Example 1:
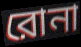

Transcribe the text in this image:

রোনা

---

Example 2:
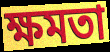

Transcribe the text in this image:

ক্ষমতা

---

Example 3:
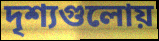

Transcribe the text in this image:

দৃশ্যগুলোয়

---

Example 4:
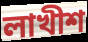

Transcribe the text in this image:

লাখীশ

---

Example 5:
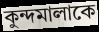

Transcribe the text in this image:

কুন্দমালাকে